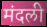
मंदली